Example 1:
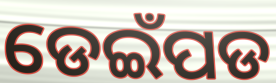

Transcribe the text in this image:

ଡେଇଁପଡ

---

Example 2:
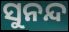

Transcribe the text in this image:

ସୁନନ୍ଦ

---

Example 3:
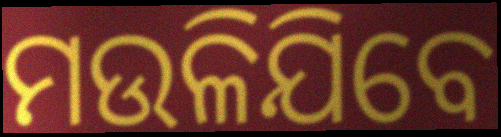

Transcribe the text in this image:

ମଉଳିଯିବେ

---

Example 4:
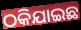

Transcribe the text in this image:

ଠକିଯାଇଛ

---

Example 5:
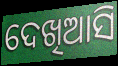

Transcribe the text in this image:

ଦେଖିଆସି